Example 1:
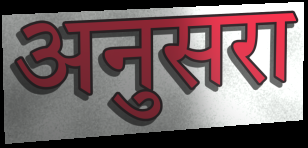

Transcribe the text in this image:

अनुसरा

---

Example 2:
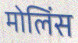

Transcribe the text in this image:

मोलिंस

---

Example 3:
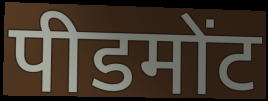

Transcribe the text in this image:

पीडमोंट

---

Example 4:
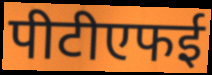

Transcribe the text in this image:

पीटीएफई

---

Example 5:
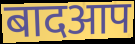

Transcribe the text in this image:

बादआप